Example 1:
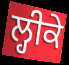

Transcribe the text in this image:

ਲ੍ਹੀਕੇ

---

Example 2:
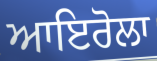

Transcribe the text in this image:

ਆਇਰੋਲਾ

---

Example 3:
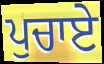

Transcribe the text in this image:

ਪੁਚਾਏ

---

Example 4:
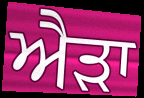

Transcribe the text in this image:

ਐੜਾ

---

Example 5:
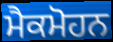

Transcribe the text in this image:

ਮੈਕਮੋਹਨ